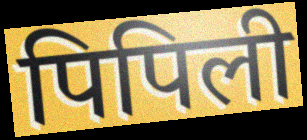
पिपिली